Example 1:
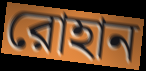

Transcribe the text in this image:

রোহান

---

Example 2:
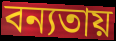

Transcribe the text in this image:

বন্যতায়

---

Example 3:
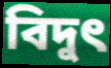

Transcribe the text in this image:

বিদুৎ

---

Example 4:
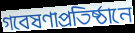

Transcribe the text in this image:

গবেষণাপ্রতিষ্ঠানে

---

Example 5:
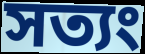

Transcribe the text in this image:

সত্যং